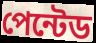
পেন্টেড